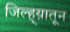
जिल्ह्य़ातून